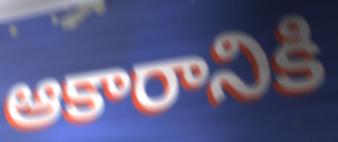
ఆకారానికి